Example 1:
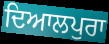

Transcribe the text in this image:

ਦਿਆਲਪੁਰਾ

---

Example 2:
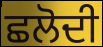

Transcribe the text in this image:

ਛਲੋਦੀ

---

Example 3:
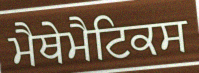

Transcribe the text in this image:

ਮੈਥੇਮੈਟਿਕਸ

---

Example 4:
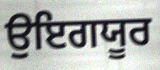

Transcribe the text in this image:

ਉਇਗਯੂਰ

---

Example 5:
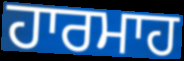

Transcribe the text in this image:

ਹਾਰਮਾਹ